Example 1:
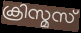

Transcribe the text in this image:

ക്രിസ്മസ്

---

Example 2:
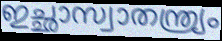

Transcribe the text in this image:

ഇച്ഛാസ്വാതന്ത്ര്യം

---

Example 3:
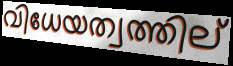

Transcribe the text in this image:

വിധേയത്വത്തില്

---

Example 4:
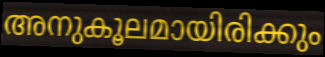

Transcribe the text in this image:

അനുകൂലമായിരിക്കും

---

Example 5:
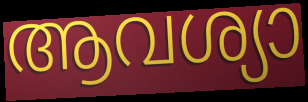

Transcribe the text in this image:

ആവശ്യാ